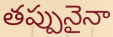
తప్పునైనా